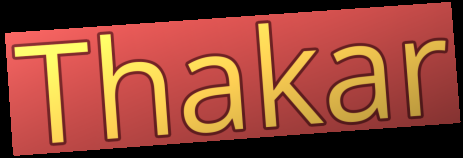
Thakar